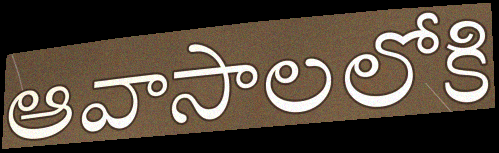
ఆవాసాలలోకి